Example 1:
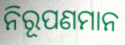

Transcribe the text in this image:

ନିରୂପଣମାନ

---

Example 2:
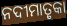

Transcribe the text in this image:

ନଦୀମାତୃକା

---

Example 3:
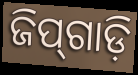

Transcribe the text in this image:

ଜିପ୍‌ଗାଡ଼ି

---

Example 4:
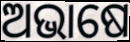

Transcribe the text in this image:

ଅଭାଷେ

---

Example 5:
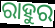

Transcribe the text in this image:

ରାହୁର